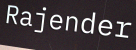
Rajender